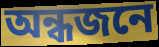
অন্ধজনে